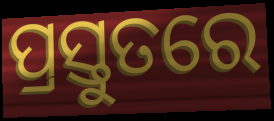
ପ୍ରସ୍ତୁତରେ